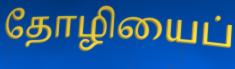
தோழியைப்